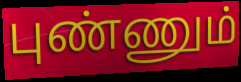
புண்ணும்